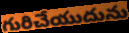
గురిచేయుదును